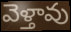
వెళ్తావు